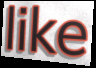
like